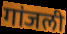
गांजली